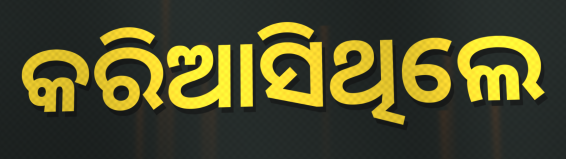
କରିଆସିଥିଲେ